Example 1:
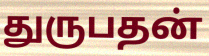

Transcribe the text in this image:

துருபதன்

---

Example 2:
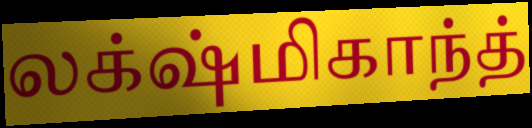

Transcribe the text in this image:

லக்‌ஷ்மிகாந்த்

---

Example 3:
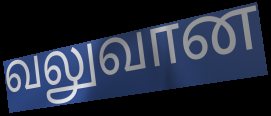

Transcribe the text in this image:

வலுவான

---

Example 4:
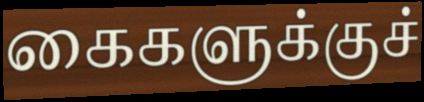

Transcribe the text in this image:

கைகளுக்குச்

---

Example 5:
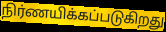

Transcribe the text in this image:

நிர்ணயிக்கப்படுகிறது